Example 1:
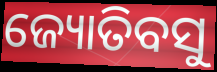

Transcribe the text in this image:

ଜ୍ୟୋତିବସୁ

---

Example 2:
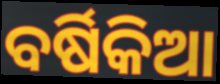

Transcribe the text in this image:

ବର୍ଷିକିଆ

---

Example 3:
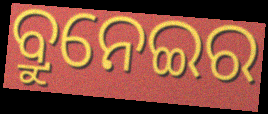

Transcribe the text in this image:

ବ୍ରୁନେଇର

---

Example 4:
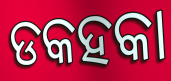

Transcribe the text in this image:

ଡକହକା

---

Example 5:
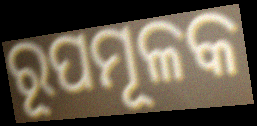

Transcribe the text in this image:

ରୂପମୂଳକ